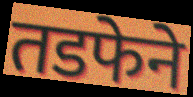
तडफेने